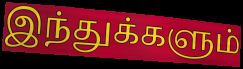
இந்துக்களும்